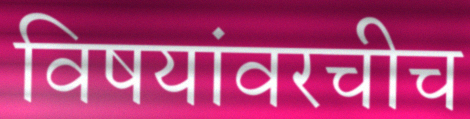
विषयांवरचीच